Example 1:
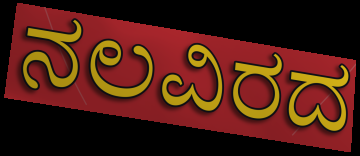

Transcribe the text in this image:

ನಲವಿರದ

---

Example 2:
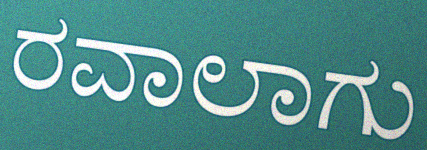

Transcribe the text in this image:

ರವಾಲಾಗು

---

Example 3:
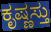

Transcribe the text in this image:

ಕೃಷ್ಣಸ್ತು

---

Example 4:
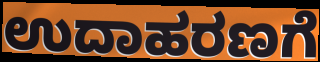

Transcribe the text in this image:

ಉದಾಹರಣಗೆ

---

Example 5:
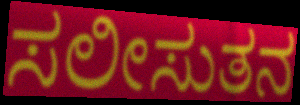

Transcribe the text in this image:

ಸಲೀಸುತನ